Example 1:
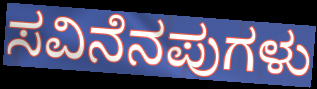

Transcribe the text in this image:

ಸವಿನೆನಪುಗಳು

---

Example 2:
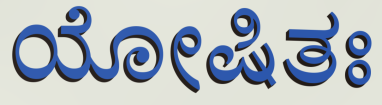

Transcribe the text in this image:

ಯೋಷಿತಃ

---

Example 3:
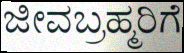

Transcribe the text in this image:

ಜೀವಬ್ರಹ್ಮರಿಗೆ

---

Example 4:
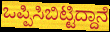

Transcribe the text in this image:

ಒಪ್ಪಿಸಿಬಿಟ್ಟಿದ್ದಾನೆ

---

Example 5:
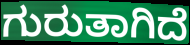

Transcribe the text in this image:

ಗುರುತಾಗಿದೆ